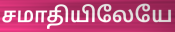
சமாதியிலேயே